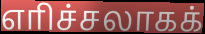
எரிச்சலாகக்